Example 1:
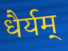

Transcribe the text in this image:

धैर्यम्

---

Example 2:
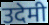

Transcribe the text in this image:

उदेमी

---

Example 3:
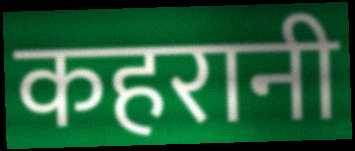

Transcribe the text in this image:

कहरानी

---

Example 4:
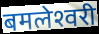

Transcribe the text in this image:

बमलेश्वरी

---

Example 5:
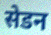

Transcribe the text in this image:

सेडन